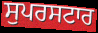
ਸੁਪਰਸਟਾਰ